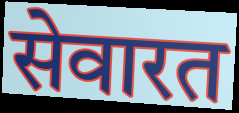
सेवारत